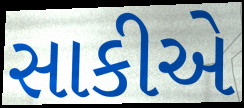
સાકીએ